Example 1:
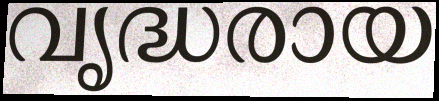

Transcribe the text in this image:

വൃദ്ധരായ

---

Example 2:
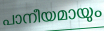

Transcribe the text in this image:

പാനീയമായും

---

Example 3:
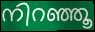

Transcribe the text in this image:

നിറഞ്ഞൂ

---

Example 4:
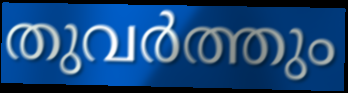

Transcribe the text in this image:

തുവർത്തും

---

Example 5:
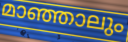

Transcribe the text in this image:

മാഞ്ഞാലും